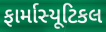
ફાર્માસ્યૂટિકલ